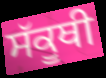
ਸੱਕੂਥੀ